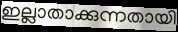
ഇല്ലാതാക്കുന്നതായി